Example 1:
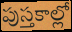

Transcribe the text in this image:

పుస్తకాల్లో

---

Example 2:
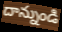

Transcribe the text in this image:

దాన్నుండి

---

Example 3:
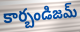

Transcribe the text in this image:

కార్బండిజమ్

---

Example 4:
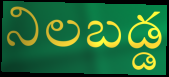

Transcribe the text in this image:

నిలబడ్డ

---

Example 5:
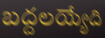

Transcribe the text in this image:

బద్దలయ్యేది